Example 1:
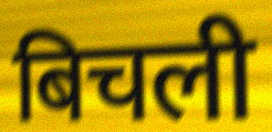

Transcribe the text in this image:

बिचली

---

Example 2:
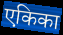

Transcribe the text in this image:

एकिका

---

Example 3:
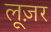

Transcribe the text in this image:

लूज़र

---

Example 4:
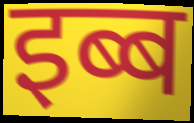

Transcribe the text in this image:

इब्ब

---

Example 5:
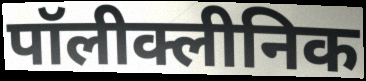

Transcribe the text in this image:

पॉलीक्लीनिक